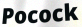
Pocock